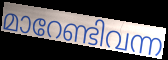
മാറേണ്ടിവന്ന